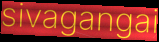
sivagangai